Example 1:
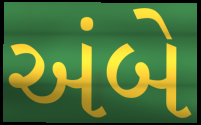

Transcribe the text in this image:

અંબે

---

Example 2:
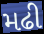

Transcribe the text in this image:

મઢી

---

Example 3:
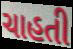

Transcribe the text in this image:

ચાહતી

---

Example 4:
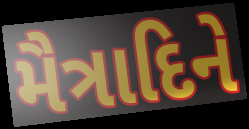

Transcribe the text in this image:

મૈત્રાદિને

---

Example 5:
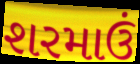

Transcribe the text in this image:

શરમાઉં